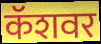
कॅशवर